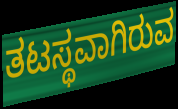
ತಟಸ್ಥವಾಗಿರುವ